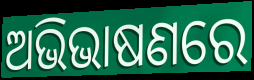
ଅଭିଭାଷଣରେ